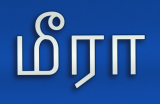
மீரா